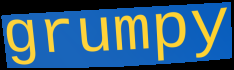
grumpy